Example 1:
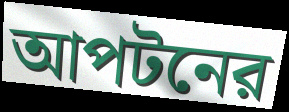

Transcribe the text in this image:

আপটনের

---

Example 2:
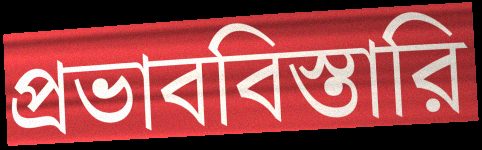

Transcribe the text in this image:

প্রভাববিস্তারি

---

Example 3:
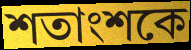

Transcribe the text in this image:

শতাংশকে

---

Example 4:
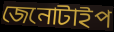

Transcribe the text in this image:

জেনোটাইপ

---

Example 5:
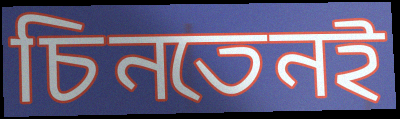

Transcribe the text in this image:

চিনতেনই